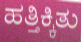
ಹತ್ತಿಕ್ಕಿತು